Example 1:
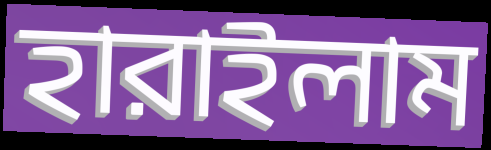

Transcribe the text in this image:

হারাইলাম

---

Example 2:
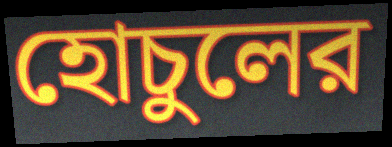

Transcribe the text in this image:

হোচুলের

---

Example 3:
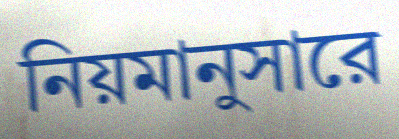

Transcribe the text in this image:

নিয়মানুসারে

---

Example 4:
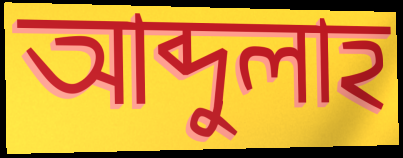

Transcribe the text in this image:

আব্দুলাহ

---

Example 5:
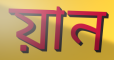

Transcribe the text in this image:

য়ান